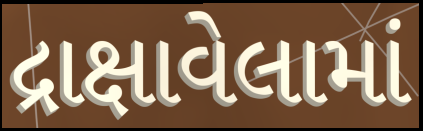
દ્રાક્ષાવેલામાં